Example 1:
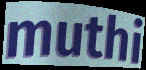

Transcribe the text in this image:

muthi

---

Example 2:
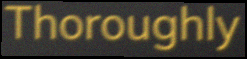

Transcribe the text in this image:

Thoroughly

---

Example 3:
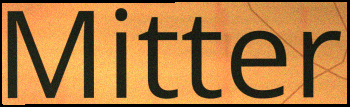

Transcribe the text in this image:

Mitter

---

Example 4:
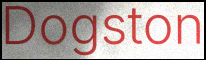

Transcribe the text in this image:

Dogston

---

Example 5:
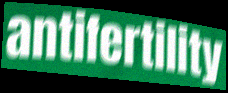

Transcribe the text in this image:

antifertility